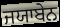
ਜਯਾਬੇਨ